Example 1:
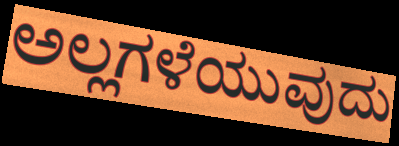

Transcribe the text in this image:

ಅಲ್ಲಗಳೆಯುವುದು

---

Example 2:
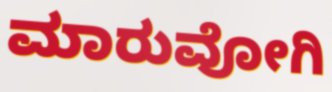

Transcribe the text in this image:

ಮಾರುವೋಗಿ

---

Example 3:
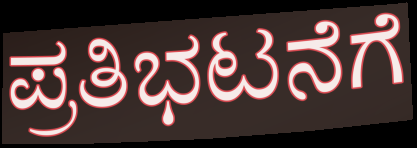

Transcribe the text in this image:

ಪ್ರತಿಭಟನೆಗೆ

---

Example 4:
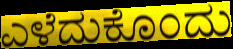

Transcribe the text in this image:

ಎಳೆದುಕೊಂದು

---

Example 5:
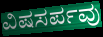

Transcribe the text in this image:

ವಿಷಸರ್ಪವು